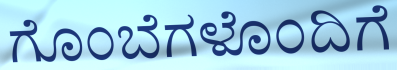
ಗೊಂಬೆಗಳೊಂದಿಗೆ